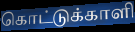
கொட்டுக்காளி